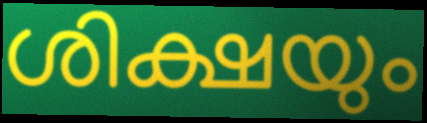
ശിക്ഷയും